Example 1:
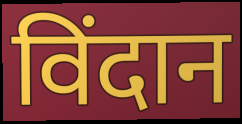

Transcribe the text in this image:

विंदान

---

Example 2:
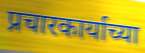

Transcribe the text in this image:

प्रचारकार्याच्या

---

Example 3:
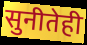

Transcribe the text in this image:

सुनीतेही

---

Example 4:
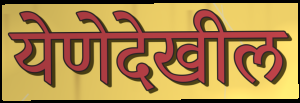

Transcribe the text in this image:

येणेदेखील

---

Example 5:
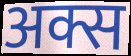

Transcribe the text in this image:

अक्स